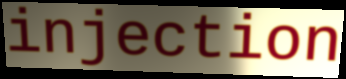
injection